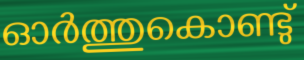
ഓർത്തുകൊണ്ടു്